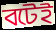
বটেই